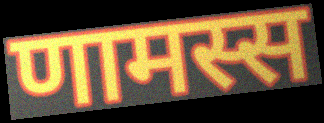
णामस्स